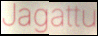
Jagattu